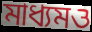
মাধ্যমও